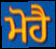
ਮੋਹੈ